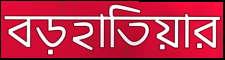
বড়হাতিয়ার